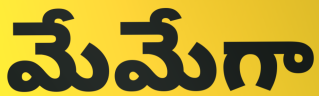
మేమేగా